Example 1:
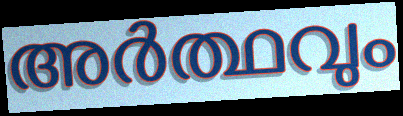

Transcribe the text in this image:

അർത്ഥവും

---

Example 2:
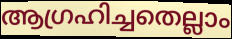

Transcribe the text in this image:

ആഗ്രഹിച്ചതെല്ലാം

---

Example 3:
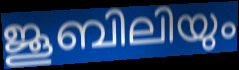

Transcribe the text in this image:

ജൂബിലിയും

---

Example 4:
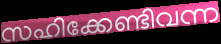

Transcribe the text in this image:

സഹിക്കേണ്ടിവന്ന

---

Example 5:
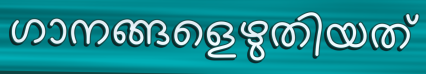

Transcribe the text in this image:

ഗാനങ്ങളെഴുതിയത്